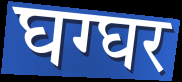
घग्घर